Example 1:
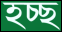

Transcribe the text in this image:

হচ্ছ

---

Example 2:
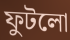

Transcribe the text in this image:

ফুটলো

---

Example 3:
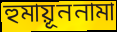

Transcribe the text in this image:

হুমায়ূননামা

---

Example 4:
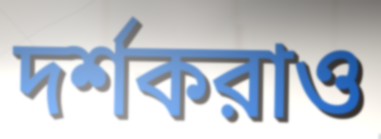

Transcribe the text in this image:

দর্শকরাও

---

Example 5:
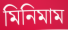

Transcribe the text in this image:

মিনিমাম